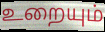
உறையும்